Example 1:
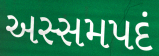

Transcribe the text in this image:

અસ્સમપદં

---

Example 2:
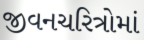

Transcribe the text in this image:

જીવનચરિત્રોમાં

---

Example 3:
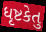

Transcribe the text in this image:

ધૃષ્ટકેતુ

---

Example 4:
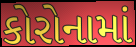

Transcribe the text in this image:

કોરોનામાં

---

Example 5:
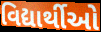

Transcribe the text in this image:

વિદ્યાર્થીઓ